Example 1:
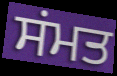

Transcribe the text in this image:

ਸਂਮਤ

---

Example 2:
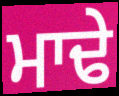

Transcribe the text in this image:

ਮਾਢੇ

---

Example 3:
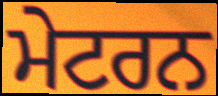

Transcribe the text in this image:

ਮੇਟਰਨ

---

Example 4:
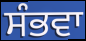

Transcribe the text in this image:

ਸੰਭਵਾ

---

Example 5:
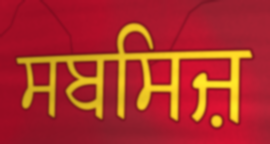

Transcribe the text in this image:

ਸਬਸਿਜ਼